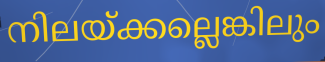
നിലയ്ക്കല്ലെങ്കിലും